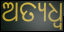
ଅତ୍ୟଧ୍ୱ